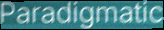
Paradigmatic